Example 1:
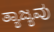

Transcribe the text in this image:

ತ್ಯಾಜ್ಯವು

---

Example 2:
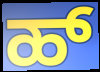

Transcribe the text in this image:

ಹ್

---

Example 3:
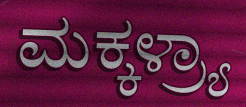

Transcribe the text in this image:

ಮಕ್ಕಳ್ರ್ಯಾ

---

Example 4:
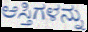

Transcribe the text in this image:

ಆಸ್ತಿಗಳನ್ನು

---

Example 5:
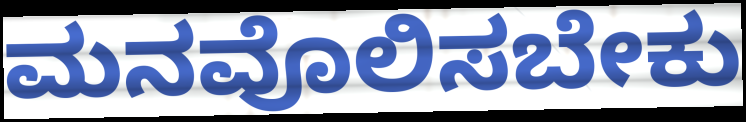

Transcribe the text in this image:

ಮನವೊಲಿಸಬೇಕು